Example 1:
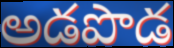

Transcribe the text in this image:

అడపొడ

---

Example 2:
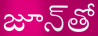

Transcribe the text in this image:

జూన్‌తో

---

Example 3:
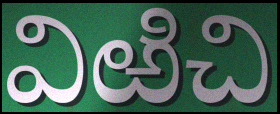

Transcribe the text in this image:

విఱిచి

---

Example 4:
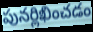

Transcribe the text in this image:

పునర్లిఖించడం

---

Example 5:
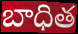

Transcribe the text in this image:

బాధిత